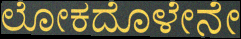
ಲೋಕದೊಳೇನೇ